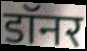
डॉनर